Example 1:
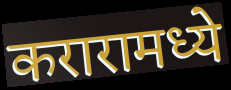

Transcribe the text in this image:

करारामध्ये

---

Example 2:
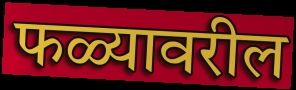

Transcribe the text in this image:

फळ्यावरील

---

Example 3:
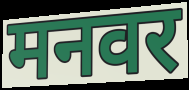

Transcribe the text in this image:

मनवर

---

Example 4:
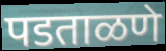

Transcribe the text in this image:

पडताळणे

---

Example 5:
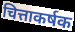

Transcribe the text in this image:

चित्ताकर्षक